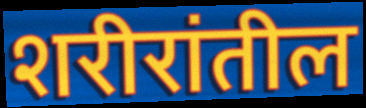
शरीरांतील